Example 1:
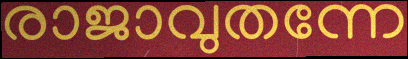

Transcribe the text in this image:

രാജാവുതന്നേ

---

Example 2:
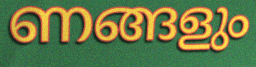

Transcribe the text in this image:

ണങ്ങളും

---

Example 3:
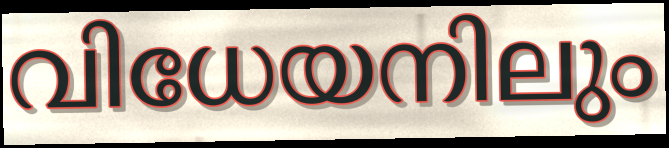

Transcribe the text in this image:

വിധേയനിലും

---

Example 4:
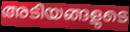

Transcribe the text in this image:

അടിയങ്ങളുടെ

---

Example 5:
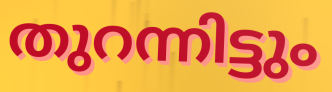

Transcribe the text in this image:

തുറന്നിട്ടും